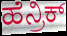
ಹೆನ್ರಿಕ್